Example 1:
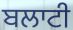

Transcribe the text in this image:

ਬਲਾਟੀ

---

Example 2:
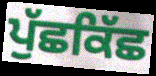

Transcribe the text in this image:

ਪੁੱਛਕਿੱਛ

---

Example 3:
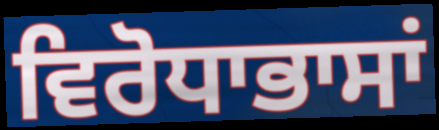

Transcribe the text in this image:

ਵਿਰੋਧਾਭਾਸਾਂ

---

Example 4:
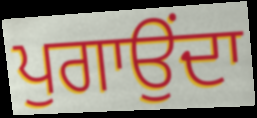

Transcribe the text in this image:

ਪੁਗਾਉਂਦਾ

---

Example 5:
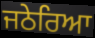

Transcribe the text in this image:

ਜਠੇਰਿਆ